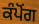
ਕੰਪੋਂਗ